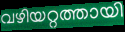
വഴിയറ്റത്തായി